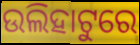
ଉଲିହାଟୁରେ